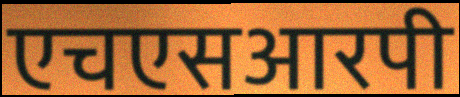
एचएसआरपी